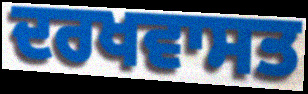
ਦਰਖਵਾਸਤ